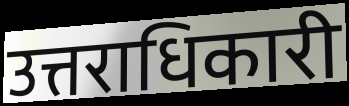
उत्तराधिकारी